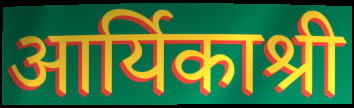
आर्यिकाश्री